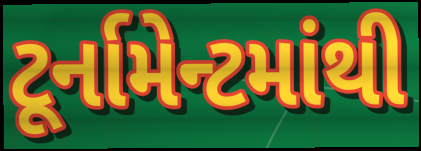
ટૂર્નામેન્ટમાંથી